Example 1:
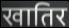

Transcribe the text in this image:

खातिर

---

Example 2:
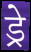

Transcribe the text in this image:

ड्रे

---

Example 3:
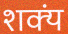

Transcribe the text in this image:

शक्यं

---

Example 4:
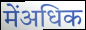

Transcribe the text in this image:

मेंअधिक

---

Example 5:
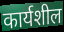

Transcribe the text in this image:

कार्यशील